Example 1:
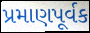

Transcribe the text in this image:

પ્રમાણપૂર્વક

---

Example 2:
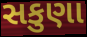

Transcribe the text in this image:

સકુણા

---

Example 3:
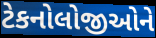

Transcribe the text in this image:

ટેકનોલોજીઓને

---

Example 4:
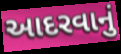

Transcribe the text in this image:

આદરવાનું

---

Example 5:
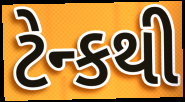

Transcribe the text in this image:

ટેન્કથી